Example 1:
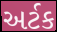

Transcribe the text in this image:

અર્ટક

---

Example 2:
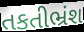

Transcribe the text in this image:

તકતીભ્રંશ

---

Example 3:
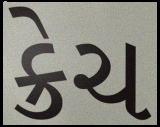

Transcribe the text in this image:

ક્રેચ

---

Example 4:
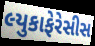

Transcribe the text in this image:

લ્યુકાફેરેસીસ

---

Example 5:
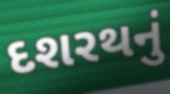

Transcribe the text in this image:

દશરથનું